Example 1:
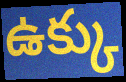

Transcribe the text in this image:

ఉక్కు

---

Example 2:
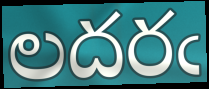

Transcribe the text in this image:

లదరఁ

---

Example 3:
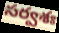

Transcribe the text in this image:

సర్వశః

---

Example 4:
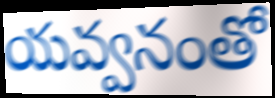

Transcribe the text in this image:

యవ్వనంతో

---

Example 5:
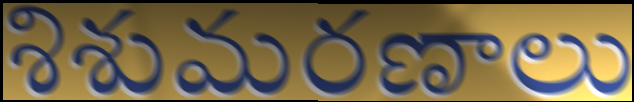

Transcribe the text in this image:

శిశుమరణాలు